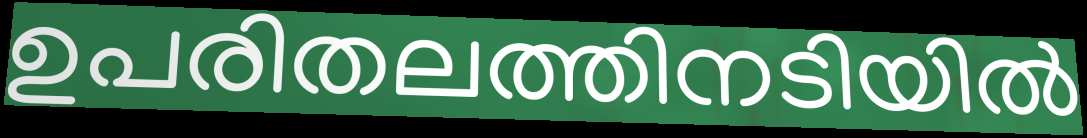
ഉപരിതലത്തിനടിയിൽ